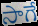
సాగే